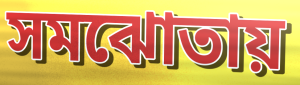
সমঝোতায়